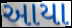
આયા